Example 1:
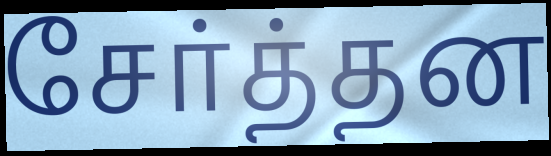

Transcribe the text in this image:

சேர்த்தன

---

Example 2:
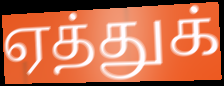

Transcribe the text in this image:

ஏத்துக்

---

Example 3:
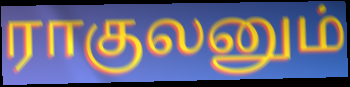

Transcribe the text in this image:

ராகுலனும்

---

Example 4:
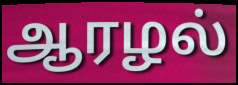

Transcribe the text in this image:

ஆரழல்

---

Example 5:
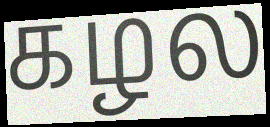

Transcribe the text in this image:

கழல